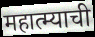
महात्म्याची